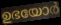
ഉഭയോർ